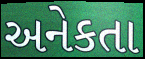
અનેકતા